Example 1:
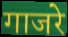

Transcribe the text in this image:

गाजरे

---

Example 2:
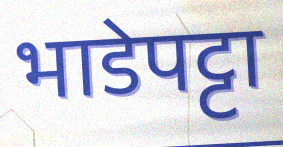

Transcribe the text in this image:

भाडेपट्टा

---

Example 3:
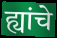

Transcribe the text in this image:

ह्यांचे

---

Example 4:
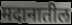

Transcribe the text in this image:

मदानातील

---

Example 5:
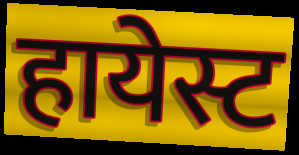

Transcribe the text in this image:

हायेस्ट